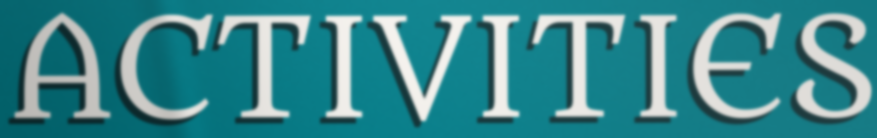
ACTIVITIES